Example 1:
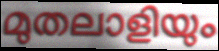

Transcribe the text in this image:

മുതലാളിയും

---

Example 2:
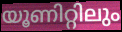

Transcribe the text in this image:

യൂണിറ്റിലും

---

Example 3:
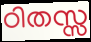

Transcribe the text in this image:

ഠിതസ്സ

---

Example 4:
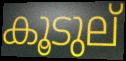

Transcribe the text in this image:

കൂടുല്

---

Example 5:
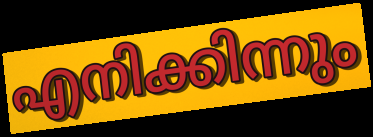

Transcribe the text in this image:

എനിക്കിന്നും